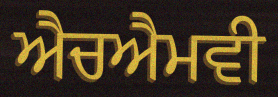
ਐਚਐਮਵੀ